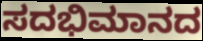
ಸದಭಿಮಾನದ